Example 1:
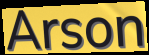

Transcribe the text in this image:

Arson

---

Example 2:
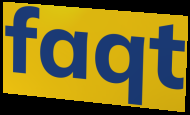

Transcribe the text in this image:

faqt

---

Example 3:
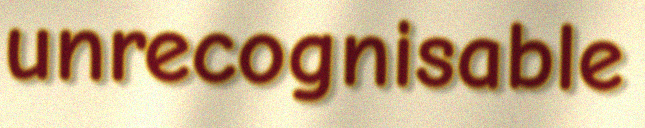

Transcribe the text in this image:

unrecognisable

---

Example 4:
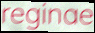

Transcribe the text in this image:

reginae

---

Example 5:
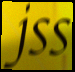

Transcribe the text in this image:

jss